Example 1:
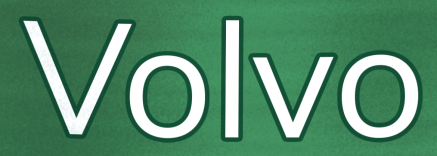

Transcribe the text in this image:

Volvo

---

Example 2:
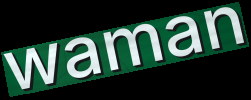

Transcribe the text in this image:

waman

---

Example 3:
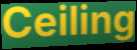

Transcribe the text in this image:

Ceiling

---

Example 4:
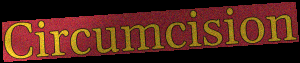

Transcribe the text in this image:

Circumcision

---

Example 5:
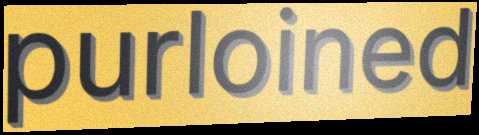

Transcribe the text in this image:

purloined